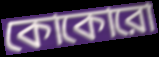
কোকোরো